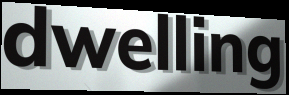
dwelling